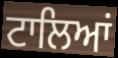
ਟਾਲਿਆਂ